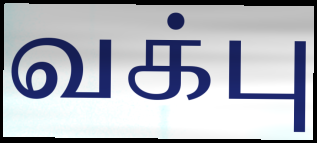
வக்பு